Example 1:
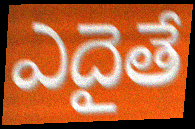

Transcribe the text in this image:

ఎదైతే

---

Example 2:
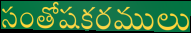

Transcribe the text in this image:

సంతోషకరములు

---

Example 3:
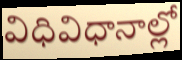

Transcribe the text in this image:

విధివిధానాల్లో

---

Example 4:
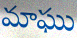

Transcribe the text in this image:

మాఘు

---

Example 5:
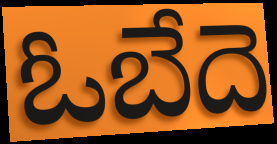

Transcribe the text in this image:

ఓబేదె